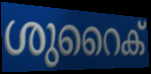
ശുറൈക്